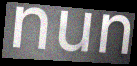
nun